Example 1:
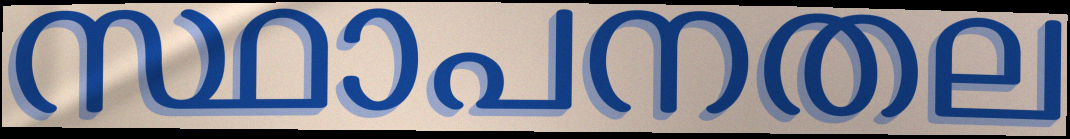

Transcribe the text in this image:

സ്ഥാപനതല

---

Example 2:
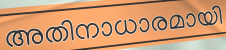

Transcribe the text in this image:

അതിനാധാരമായി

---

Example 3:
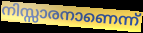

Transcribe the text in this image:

നിസ്സാരനാണെന്ന്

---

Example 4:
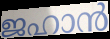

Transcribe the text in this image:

ജഹാൻ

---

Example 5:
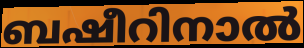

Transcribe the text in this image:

ബഷീറിനാൽ